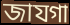
জাযগা